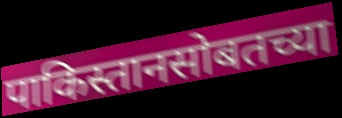
पाकिस्तानसोबतच्या